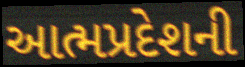
આત્મપ્રદેશની